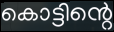
കൊട്ടിന്റെ